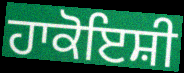
ਹਾਕੋਇਸ਼ੀ